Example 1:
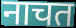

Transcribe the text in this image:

नाचत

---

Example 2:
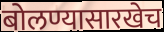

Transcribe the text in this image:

बोलण्यासारखेच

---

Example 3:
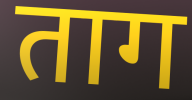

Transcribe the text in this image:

ताग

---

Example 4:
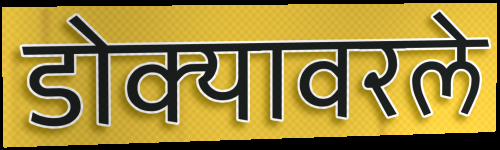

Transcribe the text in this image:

डोक्यावरले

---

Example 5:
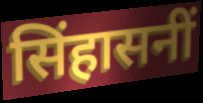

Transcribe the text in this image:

सिंहासनीं